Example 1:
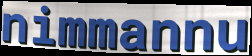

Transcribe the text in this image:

nimmannu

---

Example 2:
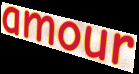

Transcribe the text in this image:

amour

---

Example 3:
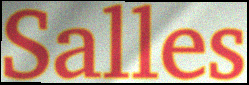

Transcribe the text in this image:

Salles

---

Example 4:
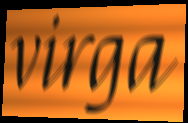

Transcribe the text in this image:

virga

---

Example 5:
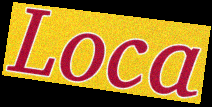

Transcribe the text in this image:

Loca